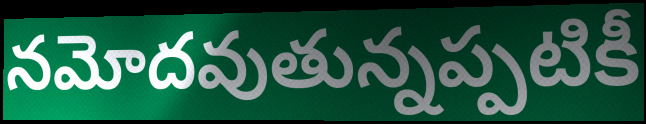
నమోదవుతున్నప్పటికీ